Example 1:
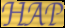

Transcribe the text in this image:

HAP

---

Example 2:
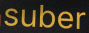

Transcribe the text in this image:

suber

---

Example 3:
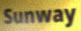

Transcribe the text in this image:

Sunway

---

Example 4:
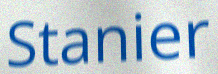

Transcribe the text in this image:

Stanier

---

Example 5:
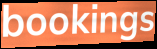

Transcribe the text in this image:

bookings